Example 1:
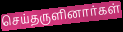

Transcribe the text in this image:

செய்தருளினார்கள்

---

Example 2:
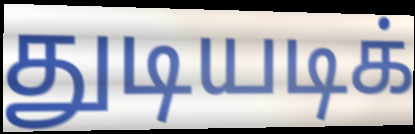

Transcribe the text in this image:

துடியடிக்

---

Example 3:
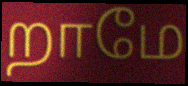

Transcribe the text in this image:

றாமே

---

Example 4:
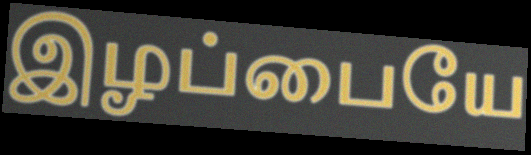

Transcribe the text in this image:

இழப்பையே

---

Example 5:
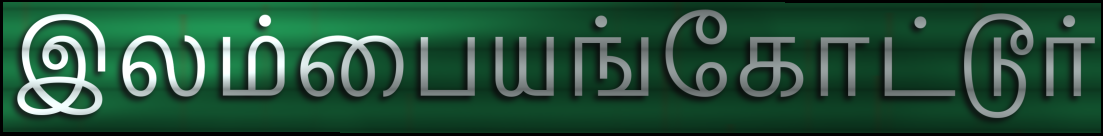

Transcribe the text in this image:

இலம்பையங்கோட்டூர்